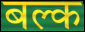
बल्क